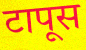
टापूस